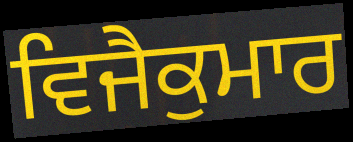
ਵਿਜੈਕੁਮਾਰ